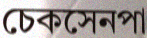
চেকসেনপা